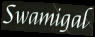
Swamigal